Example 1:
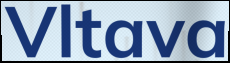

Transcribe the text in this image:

Vltava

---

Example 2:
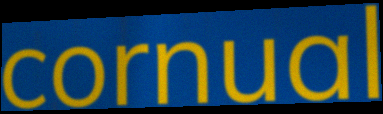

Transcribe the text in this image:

cornual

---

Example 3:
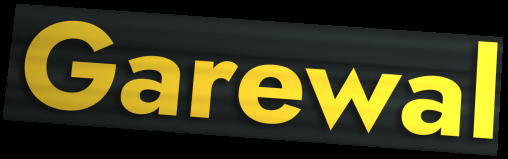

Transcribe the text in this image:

Garewal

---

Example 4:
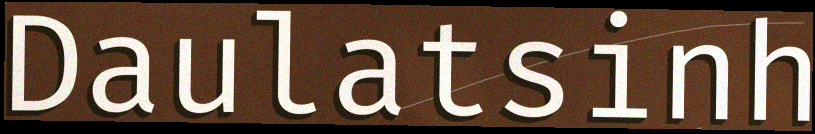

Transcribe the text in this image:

Daulatsinh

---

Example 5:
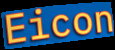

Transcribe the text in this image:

Eicon